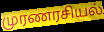
முரணரசியல்